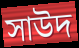
সাউদ